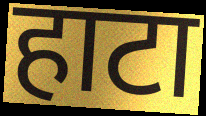
हाटा